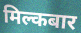
मिल्कबार